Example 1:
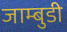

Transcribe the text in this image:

जाम्बुडी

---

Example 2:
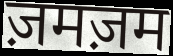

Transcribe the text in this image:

ज़मज़म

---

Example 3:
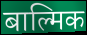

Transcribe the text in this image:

बाल्मिक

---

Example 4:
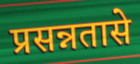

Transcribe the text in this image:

प्रसन्नतासे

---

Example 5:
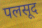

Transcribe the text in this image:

पलसूद